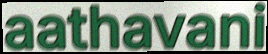
aathavani